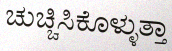
ಚುಚ್ಚಿಸಿಕೊಳ್ಳುತ್ತಾ